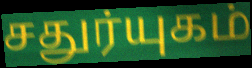
சதுர்யுகம்